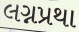
લગ્નપ્રથા